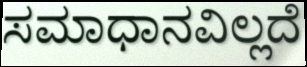
ಸಮಾಧಾನವಿಲ್ಲದೆ